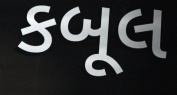
કબૂલ